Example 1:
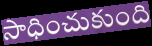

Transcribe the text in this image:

సాధించుకుంది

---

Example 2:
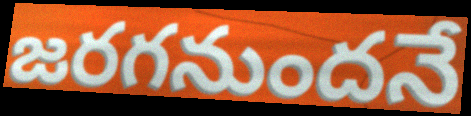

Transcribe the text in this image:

జరగనుందనే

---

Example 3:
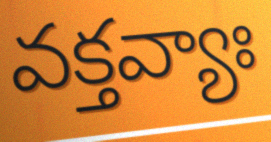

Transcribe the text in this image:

వక్తవ్యాః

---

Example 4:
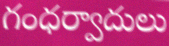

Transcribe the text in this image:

గంధర్వాదులు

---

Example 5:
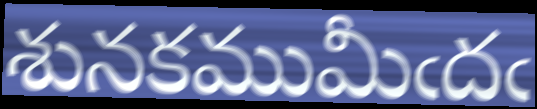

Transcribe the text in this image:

శునకముమీఁదఁ